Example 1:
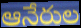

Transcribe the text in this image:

ఆనేరుల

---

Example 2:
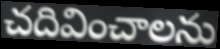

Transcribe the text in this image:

చదివించాలను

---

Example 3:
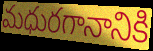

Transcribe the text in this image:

మధురగానానికి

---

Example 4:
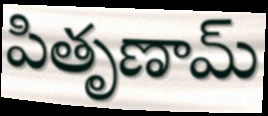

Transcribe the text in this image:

పితృణామ్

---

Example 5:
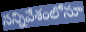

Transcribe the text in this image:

సన్నివేశంలోనూ